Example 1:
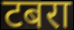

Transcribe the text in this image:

टबरा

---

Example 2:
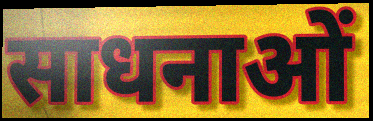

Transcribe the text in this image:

साधनाओं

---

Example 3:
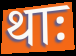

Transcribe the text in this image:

थाः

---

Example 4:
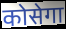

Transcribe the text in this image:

कोसेगा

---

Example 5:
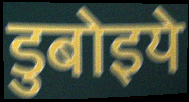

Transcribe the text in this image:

डुबोइये